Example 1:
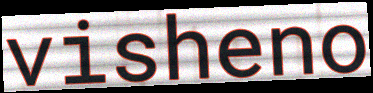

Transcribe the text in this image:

visheno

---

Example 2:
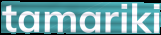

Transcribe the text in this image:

tamariki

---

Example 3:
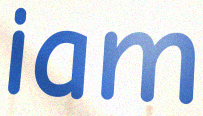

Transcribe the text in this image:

iam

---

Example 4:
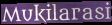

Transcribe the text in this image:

Mukilarasi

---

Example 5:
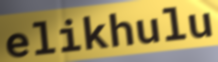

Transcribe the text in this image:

elikhulu